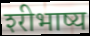
श्रीभाष्य